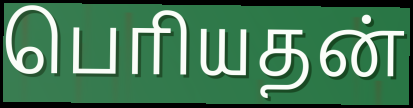
பெரியதன்